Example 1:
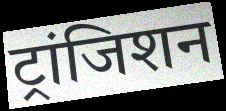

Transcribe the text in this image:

ट्रांजिशन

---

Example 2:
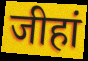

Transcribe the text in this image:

जीहां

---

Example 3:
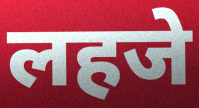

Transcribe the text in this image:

लहजे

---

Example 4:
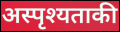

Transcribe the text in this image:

अस्पृश्यताकी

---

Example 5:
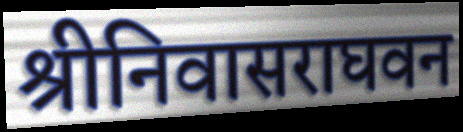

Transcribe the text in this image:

श्रीनिवासराघवन